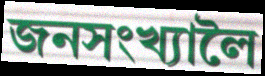
জনসংখ্যালৈ